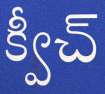
క్వీచ్